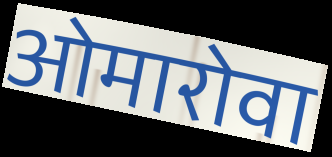
ओमारोवा